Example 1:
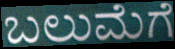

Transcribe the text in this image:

ಬಲುಮೆಗೆ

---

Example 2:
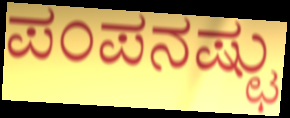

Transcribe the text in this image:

ಪಂಪನಷ್ಟು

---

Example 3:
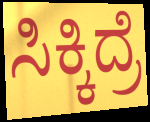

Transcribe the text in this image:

ಸಿಕ್ಕಿದ್ರೆ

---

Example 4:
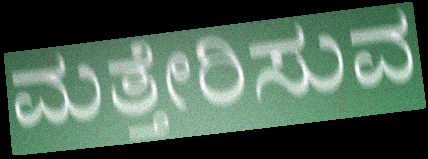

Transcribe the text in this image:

ಮತ್ತೇರಿಸುವ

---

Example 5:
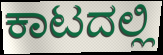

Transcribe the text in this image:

ಕಾಟದಲ್ಲಿ